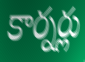
కార్నర్లు